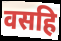
वसहि